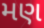
મણ